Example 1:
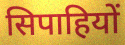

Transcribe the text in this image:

सिपाहियों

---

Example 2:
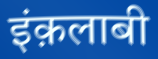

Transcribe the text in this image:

इंक़लाबी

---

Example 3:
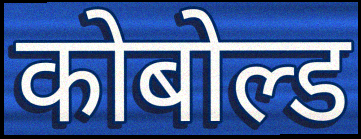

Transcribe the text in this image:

कोबोल्ड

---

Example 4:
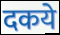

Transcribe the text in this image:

दकये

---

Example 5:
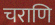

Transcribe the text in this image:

चराणि